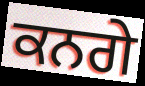
ਕਨਗੇ